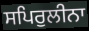
ਸਪਿਰੁਲੀਨਾ